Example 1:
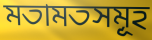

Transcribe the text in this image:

মতামতসমূহ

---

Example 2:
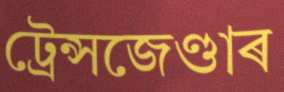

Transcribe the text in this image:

ট্ৰেন্সজেণ্ডাৰ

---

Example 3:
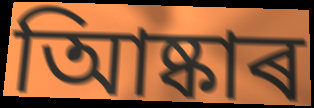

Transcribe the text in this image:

আিষ্কাৰ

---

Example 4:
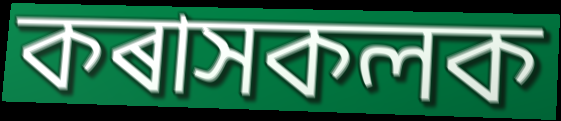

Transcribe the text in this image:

কৰাসকলক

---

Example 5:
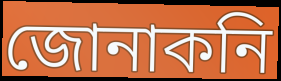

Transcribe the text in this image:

জোনাকনি